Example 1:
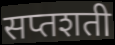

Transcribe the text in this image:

सप्तशती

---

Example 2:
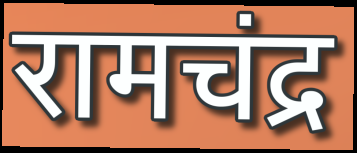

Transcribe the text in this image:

रामचंद्र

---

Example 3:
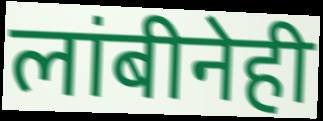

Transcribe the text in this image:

लांबीनेही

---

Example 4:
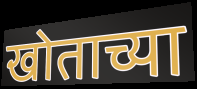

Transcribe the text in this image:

खोताच्या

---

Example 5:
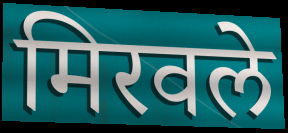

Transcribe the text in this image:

मिरवले